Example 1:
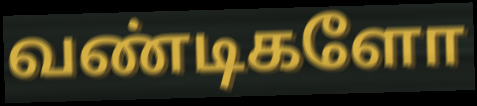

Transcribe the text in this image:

வண்டிகளோ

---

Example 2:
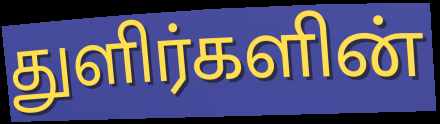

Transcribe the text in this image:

துளிர்களின்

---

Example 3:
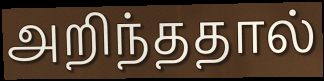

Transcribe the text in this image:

அறிந்ததால்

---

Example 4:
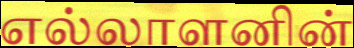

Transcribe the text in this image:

எல்லாளனின்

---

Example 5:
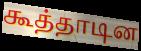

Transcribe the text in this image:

கூத்தாடின